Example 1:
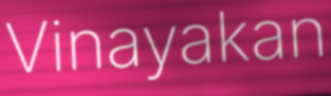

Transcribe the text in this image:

Vinayakan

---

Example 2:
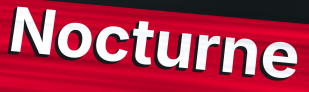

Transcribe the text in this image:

Nocturne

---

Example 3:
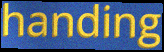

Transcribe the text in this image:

handing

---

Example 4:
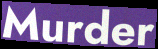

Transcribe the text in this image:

Murder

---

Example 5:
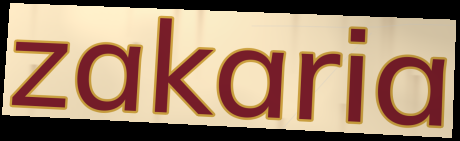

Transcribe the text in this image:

zakaria